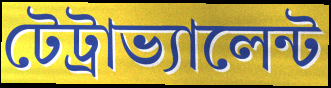
টেট্রাভ্যালেন্ট